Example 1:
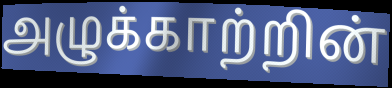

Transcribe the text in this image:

அழுக்காற்றின்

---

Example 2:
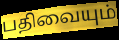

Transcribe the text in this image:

பதிவையும்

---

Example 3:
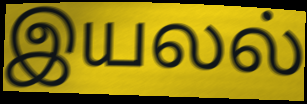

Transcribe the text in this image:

இயலல்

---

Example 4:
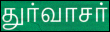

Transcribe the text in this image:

துர்வாசர்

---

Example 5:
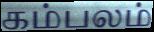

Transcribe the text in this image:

கம்பலம்